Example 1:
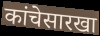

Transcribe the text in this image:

कांचेसारखा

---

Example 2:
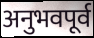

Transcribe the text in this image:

अनुभवपूर्व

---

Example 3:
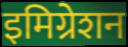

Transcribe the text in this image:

इमिग्रेशन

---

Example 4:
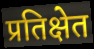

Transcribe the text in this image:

प्रतिक्षेत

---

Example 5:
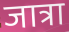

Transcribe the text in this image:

जात्रा